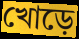
খোড়ে